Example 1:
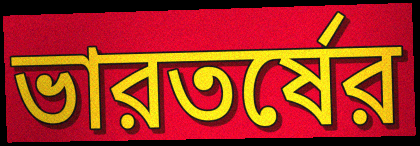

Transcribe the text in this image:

ভারতর্ষের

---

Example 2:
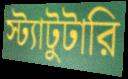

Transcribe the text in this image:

স্ট্যাটুটারি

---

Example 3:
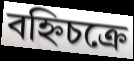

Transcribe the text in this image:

বহ্নিচক্রে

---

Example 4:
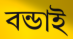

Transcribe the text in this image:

বন্ডাই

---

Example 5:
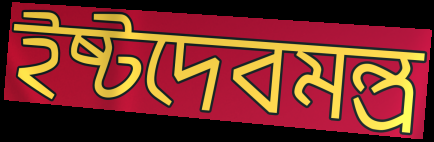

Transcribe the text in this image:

ইষ্টদেবমন্ত্র